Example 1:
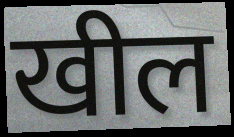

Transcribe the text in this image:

खील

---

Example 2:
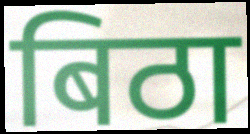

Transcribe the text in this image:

बिठा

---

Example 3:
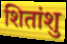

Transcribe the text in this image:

शितांशु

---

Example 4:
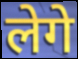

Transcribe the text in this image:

लेगे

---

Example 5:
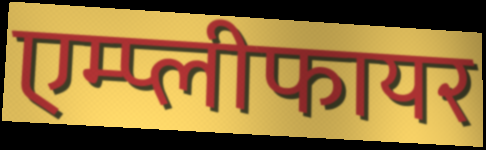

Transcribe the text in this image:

एम्प्लीफायर